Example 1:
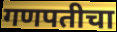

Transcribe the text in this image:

गणपतीचा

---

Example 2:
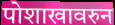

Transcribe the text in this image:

पोशाखावरुन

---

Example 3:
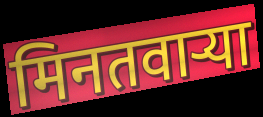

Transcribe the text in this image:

मिनतवार्‍या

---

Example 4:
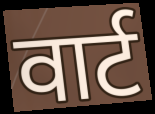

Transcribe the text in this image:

वार्ट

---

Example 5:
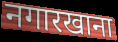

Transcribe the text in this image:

नगारखाना